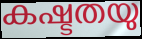
കഷ്ടതയു